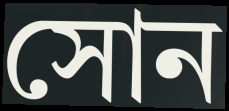
সোন